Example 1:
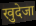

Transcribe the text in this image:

खुदेजा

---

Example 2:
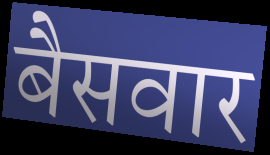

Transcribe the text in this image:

बैसवार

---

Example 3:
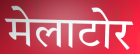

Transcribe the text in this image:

मेलाटोर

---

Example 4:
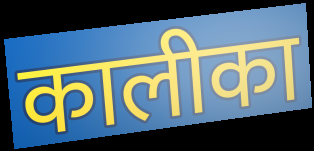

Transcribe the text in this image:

कालीका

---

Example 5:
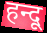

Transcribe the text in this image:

हन्दू